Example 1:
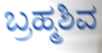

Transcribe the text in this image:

ಬ್ರಹ್ಮಶಿವ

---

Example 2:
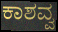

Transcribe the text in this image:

ಕಾಶವ್ವ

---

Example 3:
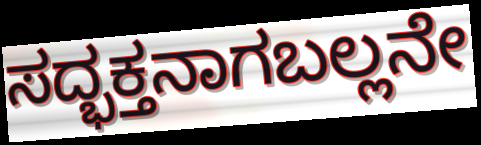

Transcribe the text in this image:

ಸದ್ಭಕ್ತನಾಗಬಲ್ಲನೇ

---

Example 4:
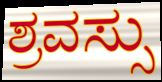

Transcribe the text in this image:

ಶ್ರವಸ್ಸು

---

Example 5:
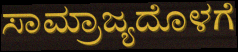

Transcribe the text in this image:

ಸಾಮ್ರಾಜ್ಯದೊಳಗೆ